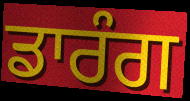
ਡਾਰੰਗ